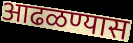
आढळण्यास